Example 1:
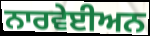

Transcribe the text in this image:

ਨਾਰਵੇਈਅਨ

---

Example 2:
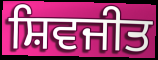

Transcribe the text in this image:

ਸ਼ਿਵਜੀਤ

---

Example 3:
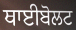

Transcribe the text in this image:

ਥਾਈਬੋਲਟ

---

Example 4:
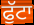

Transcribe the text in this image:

ਫੁੱਟਾ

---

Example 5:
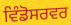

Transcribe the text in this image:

ਵਿੰਡੋਸਰਵਰ